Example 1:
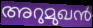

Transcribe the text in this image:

അറുമുഖൻ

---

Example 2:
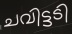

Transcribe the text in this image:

ചവിട്ടടി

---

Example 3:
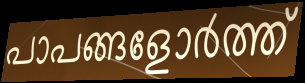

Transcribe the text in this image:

പാപങ്ങളോർത്ത്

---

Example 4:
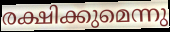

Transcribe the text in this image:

രക്ഷിക്കുമെന്നു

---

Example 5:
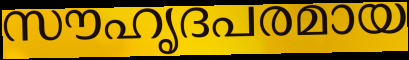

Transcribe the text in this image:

സൗഹൃദപരമായ